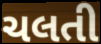
ચલતી